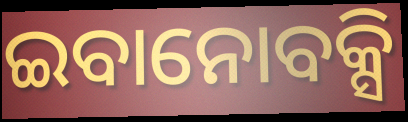
ଇବାନୋବକ୍ସି